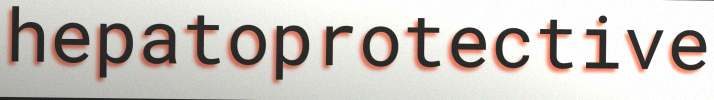
hepatoprotective